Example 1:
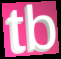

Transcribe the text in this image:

tb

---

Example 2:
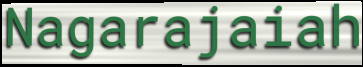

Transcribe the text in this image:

Nagarajaiah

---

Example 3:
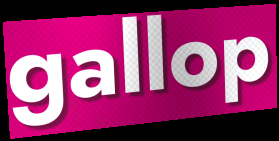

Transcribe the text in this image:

gallop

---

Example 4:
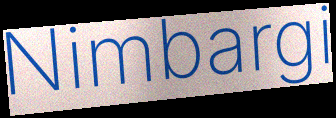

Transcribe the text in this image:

Nimbargi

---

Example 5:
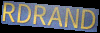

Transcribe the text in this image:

RDRAND